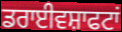
ਡਰਾਈਵਸ਼ਾਫਟਾਂ